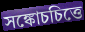
সঙ্কোচচিত্তে